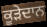
ਕੂੜੇਦਾਨ